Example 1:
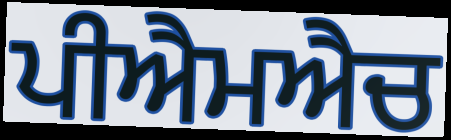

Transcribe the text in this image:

ਪੀਐਮਐਚ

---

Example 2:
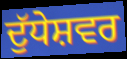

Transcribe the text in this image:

ਦੁੱਧੇਸ਼ਵਰ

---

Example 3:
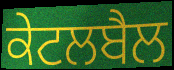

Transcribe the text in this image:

ਕੇਟਲਬੈਲ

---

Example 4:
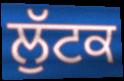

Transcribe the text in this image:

ਲੁੱਟਕ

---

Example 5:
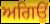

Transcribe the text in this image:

ਅਗਿਉਂ